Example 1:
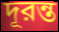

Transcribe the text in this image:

দূরন্ত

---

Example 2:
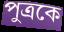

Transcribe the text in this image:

পুত্রকে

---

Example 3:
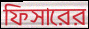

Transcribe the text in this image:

ফিসারের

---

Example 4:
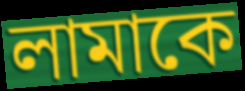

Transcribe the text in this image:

লামাকে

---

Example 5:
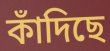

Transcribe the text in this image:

কাঁদিছে